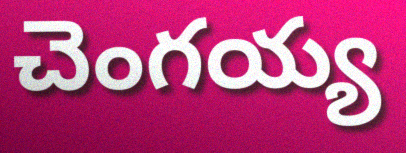
చెంగయ్య